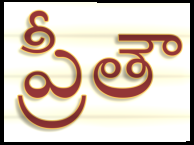
ప్రీతౌ